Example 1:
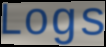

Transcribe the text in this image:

Logs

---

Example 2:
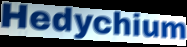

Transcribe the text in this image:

Hedychium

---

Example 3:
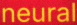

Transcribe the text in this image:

neural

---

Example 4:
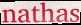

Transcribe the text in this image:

nathas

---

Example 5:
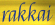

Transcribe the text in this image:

rakkai